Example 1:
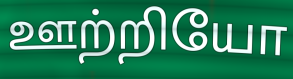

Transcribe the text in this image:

ஊற்றியோ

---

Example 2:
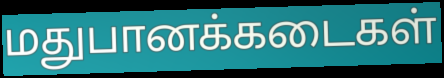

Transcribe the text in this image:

மதுபானக்கடைகள்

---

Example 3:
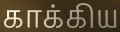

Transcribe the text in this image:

காக்கிய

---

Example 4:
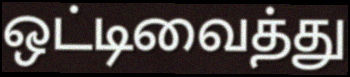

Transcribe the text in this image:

ஒட்டிவைத்து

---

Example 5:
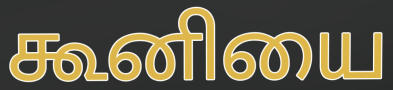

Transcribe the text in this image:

கூனியை